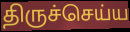
திருச்செய்ய